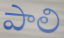
పాలి